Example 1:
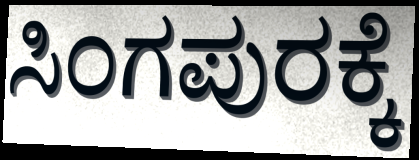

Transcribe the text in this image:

ಸಿಂಗಪುರಕ್ಕೆ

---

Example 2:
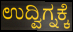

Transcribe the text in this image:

ಉದ್ವಿಗ್ನಕ್ಕೆ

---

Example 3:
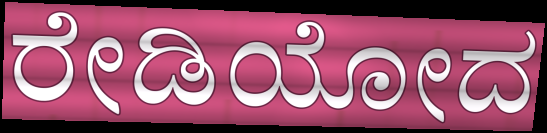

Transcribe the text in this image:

ರೇಡಿಯೋದ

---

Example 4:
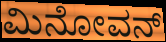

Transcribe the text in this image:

ಮಿನೋವನ್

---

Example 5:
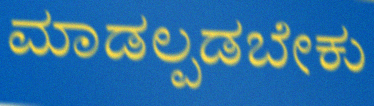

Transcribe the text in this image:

ಮಾಡಲ್ಪಡಬೇಕು